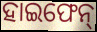
ହାଇଫେନ୍